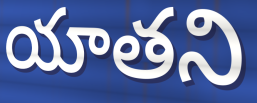
యాతని